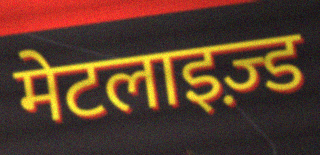
मेटलाइज़्ड